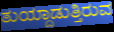
ತುಯ್ದಾಡುತ್ತಿರುವ